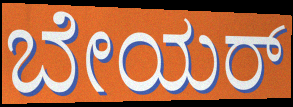
ಬೇಯರ್